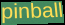
pinball